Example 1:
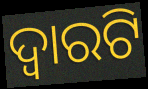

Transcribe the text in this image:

ଦ୍ୱାରଟି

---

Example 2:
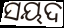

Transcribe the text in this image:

ସୟଦ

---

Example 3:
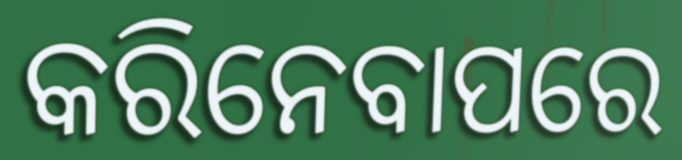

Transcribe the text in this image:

କରିନେବାପରେ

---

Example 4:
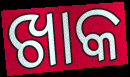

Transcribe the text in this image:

ଖାକ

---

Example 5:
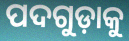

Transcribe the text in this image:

ପଦଗୁଡ଼ାକୁ